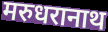
मरुधरानाथ